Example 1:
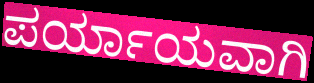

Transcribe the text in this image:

ಪರ್ಯಾಯವಾಗಿ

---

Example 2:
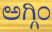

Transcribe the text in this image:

ಅಗ್ಗಿಂ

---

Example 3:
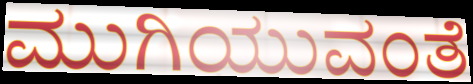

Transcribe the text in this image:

ಮುಗಿಯುವಂತೆ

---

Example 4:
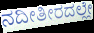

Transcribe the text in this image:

ನದೀತೀರದಲ್ಲೇ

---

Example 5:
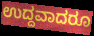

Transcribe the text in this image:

ಉದ್ದವಾದರೂ